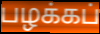
பழக்கப்